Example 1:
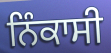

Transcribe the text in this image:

ਨਿੰਕਾਸੀ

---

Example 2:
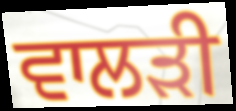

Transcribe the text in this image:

ਵਾਲੜੀ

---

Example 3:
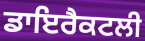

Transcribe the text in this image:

ਡਾਇਰੈਕਟਲੀ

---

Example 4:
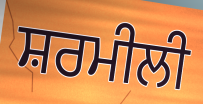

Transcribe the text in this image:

ਸ਼ਰਮੀਲੀ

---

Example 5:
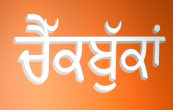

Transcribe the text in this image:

ਚੈੱਕਬੁੱਕਾਂ